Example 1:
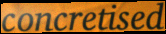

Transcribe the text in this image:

concretised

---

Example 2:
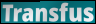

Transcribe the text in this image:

Transfus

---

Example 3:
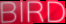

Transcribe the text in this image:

BIRD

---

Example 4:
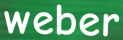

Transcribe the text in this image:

weber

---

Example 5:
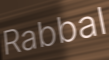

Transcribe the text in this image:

Rabbal